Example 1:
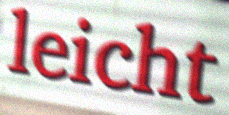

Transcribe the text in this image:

leicht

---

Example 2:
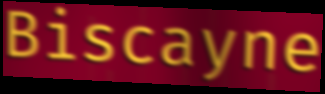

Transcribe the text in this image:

Biscayne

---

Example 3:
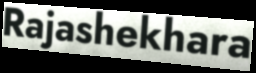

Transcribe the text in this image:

Rajashekhara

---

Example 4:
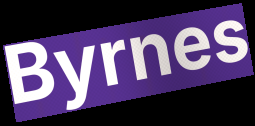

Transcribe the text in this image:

Byrnes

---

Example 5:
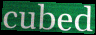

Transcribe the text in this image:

cubed